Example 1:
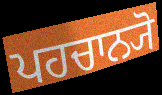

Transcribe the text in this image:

ਪਹਚਾਨ੍ਯੋ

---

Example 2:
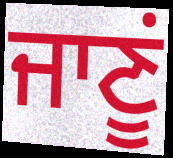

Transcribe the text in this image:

ਜਾਣੂਂ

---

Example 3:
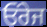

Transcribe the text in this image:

ਓਂਰੇਜ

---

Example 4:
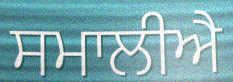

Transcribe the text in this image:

ਸਮਾਲੀਐ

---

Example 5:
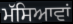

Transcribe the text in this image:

ਮੱਸਿਆਵਾਂ